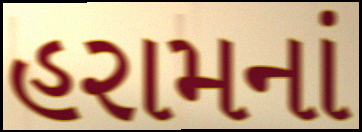
હરામનાં